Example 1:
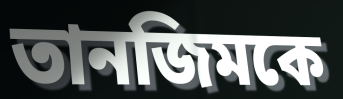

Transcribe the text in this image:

তানজিমকে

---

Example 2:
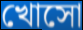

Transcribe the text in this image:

খোসো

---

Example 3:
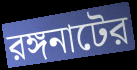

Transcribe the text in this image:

রঙ্গনাটের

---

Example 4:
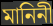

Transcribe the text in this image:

মানিনী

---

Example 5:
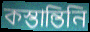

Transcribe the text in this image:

কস্তান্তিনি